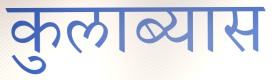
कुलाब्यास